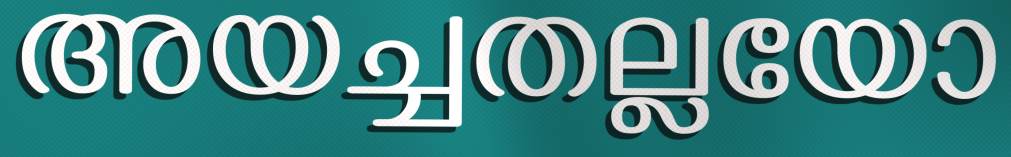
അയച്ചതല്ലയോ